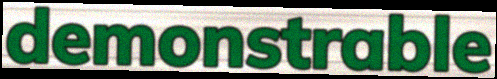
demonstrable